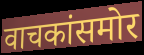
वाचकांसमोर